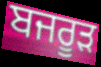
ਬਜਰੂੜ